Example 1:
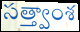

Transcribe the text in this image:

సత్త్వాంశ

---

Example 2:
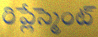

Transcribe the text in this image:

రిప్లేస్మెంట్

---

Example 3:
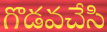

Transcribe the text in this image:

గొడవచేసి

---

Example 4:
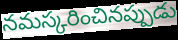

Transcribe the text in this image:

నమస్కరించినప్పుడు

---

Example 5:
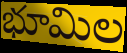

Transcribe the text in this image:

భూమిల